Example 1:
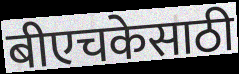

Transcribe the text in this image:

बीएचकेसाठी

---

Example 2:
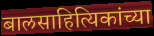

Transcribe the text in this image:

बालसाहित्यिकांच्या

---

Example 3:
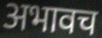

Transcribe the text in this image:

अभावच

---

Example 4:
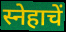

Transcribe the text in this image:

स्नेहाचें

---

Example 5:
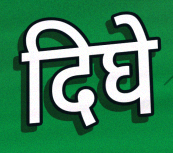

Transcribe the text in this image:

दिघे